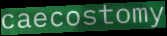
caecostomy